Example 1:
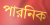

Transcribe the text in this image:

পারনিক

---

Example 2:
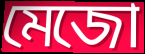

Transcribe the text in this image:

মেজো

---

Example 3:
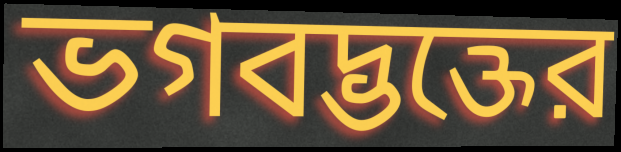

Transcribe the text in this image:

ভগবদ্ভক্তের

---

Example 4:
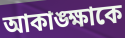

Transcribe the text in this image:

আকাঙ্ক্ষাকে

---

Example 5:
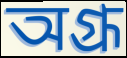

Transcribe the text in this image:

অগ্রূ